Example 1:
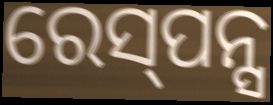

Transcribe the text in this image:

ରେସ୍‌ପନ୍ସ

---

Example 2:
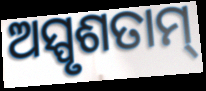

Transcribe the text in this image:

ଅସ୍ପୃଶତାମ୍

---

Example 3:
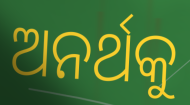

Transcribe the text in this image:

ଅନର୍ଥକୁ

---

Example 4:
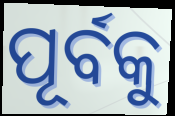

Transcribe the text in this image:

ପୂର୍ବକୁ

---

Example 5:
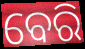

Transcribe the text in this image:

ବେରି